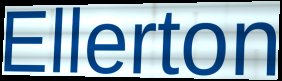
Ellerton